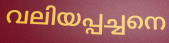
വലിയപ്പച്ചനെ